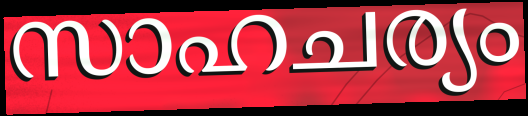
സാഹചര്യം